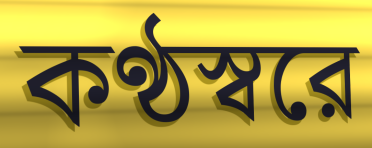
কণ্ঠস্বরে